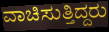
ವಾಚಿಸುತ್ತಿದ್ದರು